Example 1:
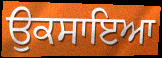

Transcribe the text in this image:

ਉਕਸਾਇਆ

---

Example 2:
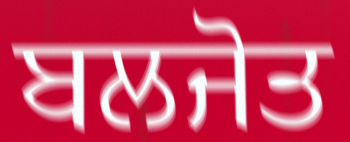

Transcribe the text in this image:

ਬਲਜੋਤ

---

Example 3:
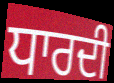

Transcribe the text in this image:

ਧਾਰਦੀ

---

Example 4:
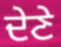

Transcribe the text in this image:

ਦੇਣੇ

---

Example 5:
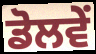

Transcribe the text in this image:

ਡੋਲਵੇਂ